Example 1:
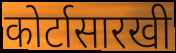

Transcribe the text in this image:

कोर्टासारखी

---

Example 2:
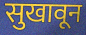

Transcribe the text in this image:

सुखावून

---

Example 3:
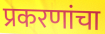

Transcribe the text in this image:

प्रकरणांचा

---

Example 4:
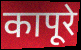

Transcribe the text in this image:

कापूरे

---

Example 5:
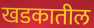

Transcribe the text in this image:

खडकातील